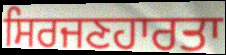
ਸਿਰਜਣਹਾਰਤਾ